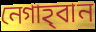
নেগাহ্‌বান